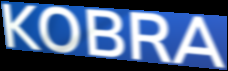
KOBRA